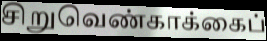
சிறுவெண்காக்கைப்